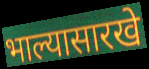
भाल्यासारखे